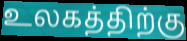
உலகத்திற்கு